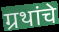
ग्रथांचे